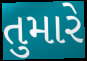
તુમારે